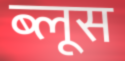
ब्लूस